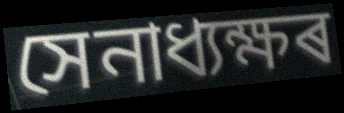
সেনাধ্যক্ষৰ